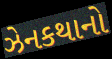
ઝેનકથાનો